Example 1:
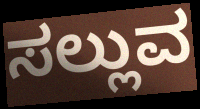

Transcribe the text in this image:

ಸಲ್ಲುವ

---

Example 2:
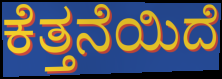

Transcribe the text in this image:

ಕೆತ್ತನೆಯಿದೆ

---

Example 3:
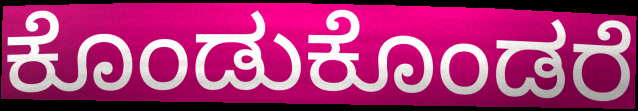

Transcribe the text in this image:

ಕೊಂಡುಕೊಂಡರೆ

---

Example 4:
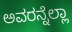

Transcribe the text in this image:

ಅವರನ್ನೆಲ್ಲಾ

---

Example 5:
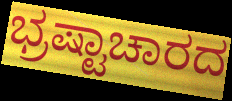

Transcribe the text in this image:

ಭ್ರಷ್ಟಾಚಾರದ